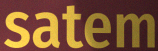
satem